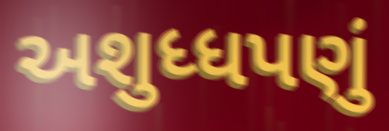
અશુધ્ધપણું